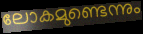
ലോകമുണ്ടെന്നും